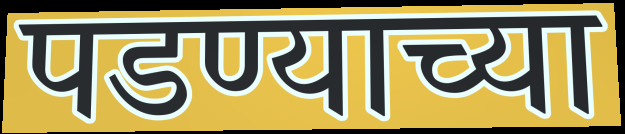
पडण्याच्या